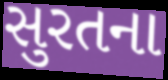
સુરતના